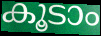
കൂടാം